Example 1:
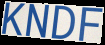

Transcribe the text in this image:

KNDF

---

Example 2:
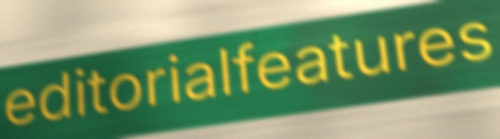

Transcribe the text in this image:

editorialfeatures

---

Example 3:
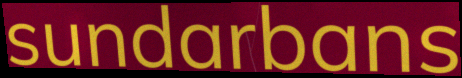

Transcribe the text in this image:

sundarbans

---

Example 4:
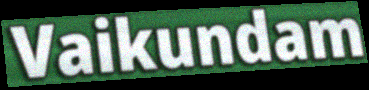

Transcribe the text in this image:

Vaikundam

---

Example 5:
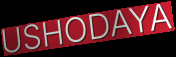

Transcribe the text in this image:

USHODAYA